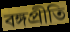
বঙ্গপ্রীতি